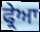
ਫ੍ਰੇਆ